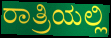
ರಾತ್ರಿಯಲ್ಲಿ